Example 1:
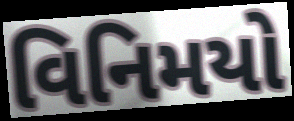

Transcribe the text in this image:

વિનિમયો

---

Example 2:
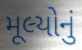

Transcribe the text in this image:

મૂલ્યોનું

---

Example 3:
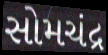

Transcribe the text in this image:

સોમચંદ્ર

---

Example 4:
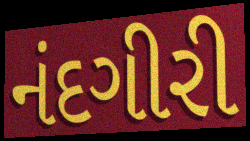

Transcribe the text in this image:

નંદગીરી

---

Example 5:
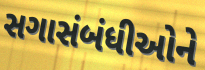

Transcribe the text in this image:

સગાસંબંધીઓને